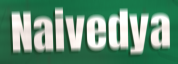
Naivedya